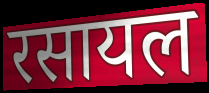
रसायल